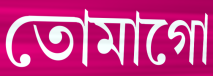
তোমাগো